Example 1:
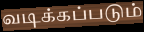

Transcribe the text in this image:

வடிக்கப்படும்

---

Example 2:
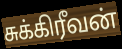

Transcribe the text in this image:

சுக்கிரீவன்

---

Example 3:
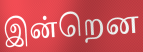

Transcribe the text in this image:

இன்றென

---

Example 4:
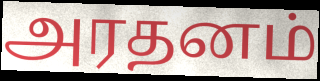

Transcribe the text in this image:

அரதனம்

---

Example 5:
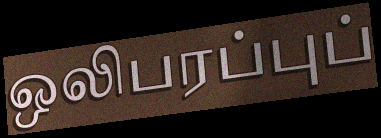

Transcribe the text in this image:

ஒலிபரப்புப்